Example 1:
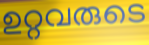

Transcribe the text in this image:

ഉറ്റവരുടെ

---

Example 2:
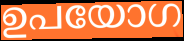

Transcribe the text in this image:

ഉപയോഗ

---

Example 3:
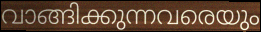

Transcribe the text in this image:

വാങ്ങിക്കുന്നവരെയും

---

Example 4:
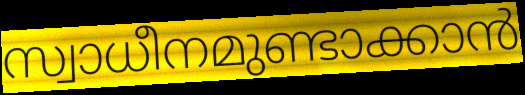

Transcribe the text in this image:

സ്വാധീനമുണ്ടാക്കാൻ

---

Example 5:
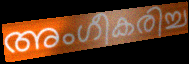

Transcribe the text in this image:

അംഗീകരിച്ച